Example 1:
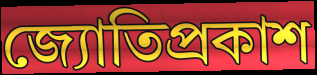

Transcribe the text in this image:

জ্যোতিপ্রকাশ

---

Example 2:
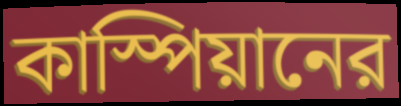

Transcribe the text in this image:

কাস্পিয়ানের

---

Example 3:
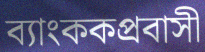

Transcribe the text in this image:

ব্যাংককপ্রবাসী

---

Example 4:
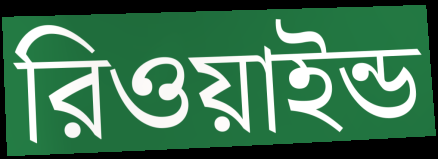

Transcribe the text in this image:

রিওয়াইন্ড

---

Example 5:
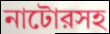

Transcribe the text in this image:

নাটোরসহ